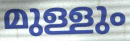
മുള്ളും